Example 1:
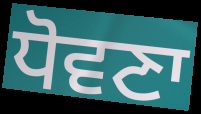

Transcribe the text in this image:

ਧੋਵਣਾ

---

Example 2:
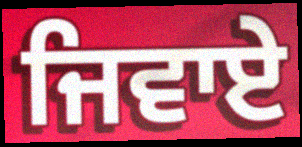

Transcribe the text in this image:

ਜਿਵਾਏ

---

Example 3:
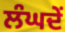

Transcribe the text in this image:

ਲੰਘਦੇਂ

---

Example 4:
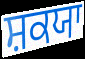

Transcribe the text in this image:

ਸ਼ਕਯਾ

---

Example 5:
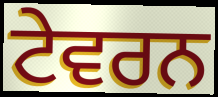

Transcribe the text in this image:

ਟੇਵਰਨ